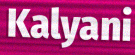
Kalyani